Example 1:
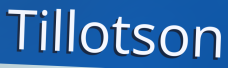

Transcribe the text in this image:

Tillotson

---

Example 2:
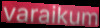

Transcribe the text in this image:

varaikum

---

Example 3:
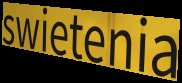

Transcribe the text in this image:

swietenia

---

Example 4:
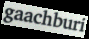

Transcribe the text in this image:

gaachburi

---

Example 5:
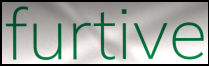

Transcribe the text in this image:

furtive